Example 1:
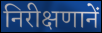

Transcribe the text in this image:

निरीक्षणानें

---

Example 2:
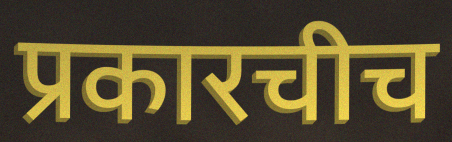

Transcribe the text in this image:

प्रकारचीच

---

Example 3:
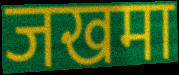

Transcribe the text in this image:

जखमा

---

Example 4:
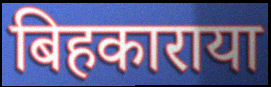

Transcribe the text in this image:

बिहकाराया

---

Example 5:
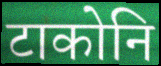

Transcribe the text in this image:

टाकोनि